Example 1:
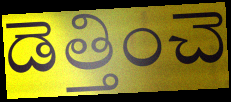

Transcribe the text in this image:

డెత్తించె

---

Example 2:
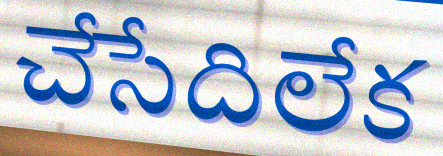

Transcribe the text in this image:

చేసేదిలేక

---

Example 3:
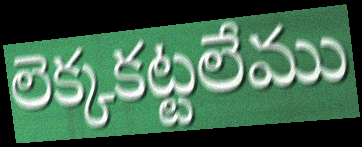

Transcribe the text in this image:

లెక్కకట్టలేము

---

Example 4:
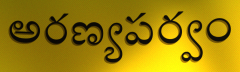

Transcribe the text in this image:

అరణ్యపర్వం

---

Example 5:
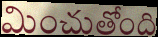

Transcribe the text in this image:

మించుతోంది